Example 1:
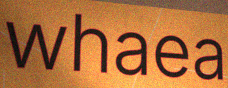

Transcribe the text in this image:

whaea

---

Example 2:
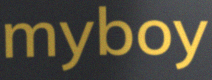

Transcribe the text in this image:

myboy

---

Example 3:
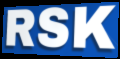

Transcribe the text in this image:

RSK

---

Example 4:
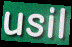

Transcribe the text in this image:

usil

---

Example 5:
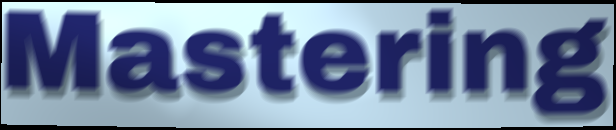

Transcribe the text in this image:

Mastering